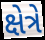
ક્ષેત્રે